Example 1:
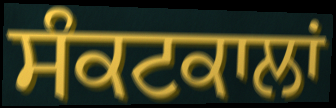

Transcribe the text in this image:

ਸੰਕਟਕਾਲਾਂ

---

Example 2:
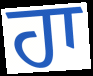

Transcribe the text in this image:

ਹਾ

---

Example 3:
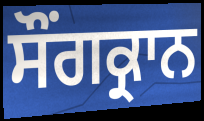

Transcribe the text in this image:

ਸੌਂਗਕ੍ਰਾਨ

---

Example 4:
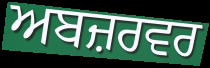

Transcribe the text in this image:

ਅਬਜ਼ਰਵਰ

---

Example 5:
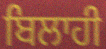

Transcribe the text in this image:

ਬਿਲਾਹੀ